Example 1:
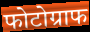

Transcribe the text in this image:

फोटोग्राफ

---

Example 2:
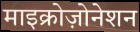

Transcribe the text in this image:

माइक्रोज़ोनेशन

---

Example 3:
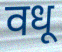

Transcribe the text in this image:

वधू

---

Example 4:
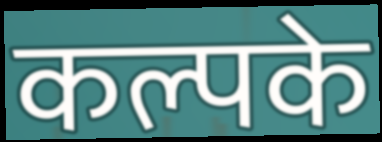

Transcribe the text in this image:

कल्पके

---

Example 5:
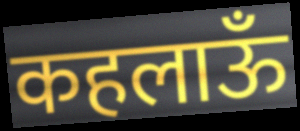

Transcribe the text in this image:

कहलाऊँ